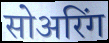
सोअरिंग